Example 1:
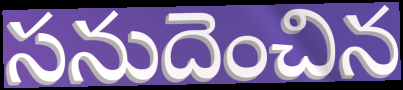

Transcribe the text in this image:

సనుదెంచిన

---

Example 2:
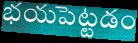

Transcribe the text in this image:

భయపెట్టడం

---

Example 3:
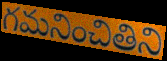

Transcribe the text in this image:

గమనించితిని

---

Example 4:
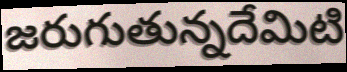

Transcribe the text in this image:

జరుగుతున్నదేమిటి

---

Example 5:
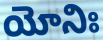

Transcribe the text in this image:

యోనిః